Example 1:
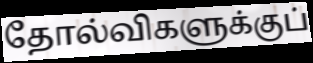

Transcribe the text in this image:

தோல்விகளுக்குப்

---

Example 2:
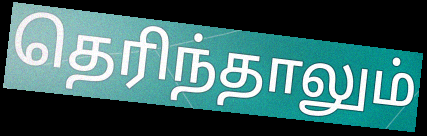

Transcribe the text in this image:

தெரிந்தாலும்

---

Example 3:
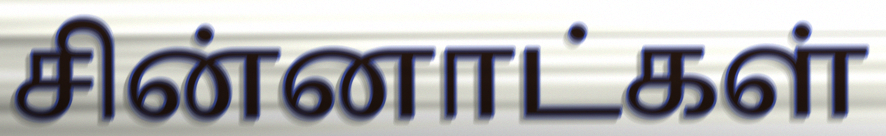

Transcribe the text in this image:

சின்னாட்கள்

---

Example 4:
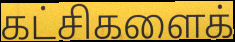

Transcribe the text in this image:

கட்சிகளைக்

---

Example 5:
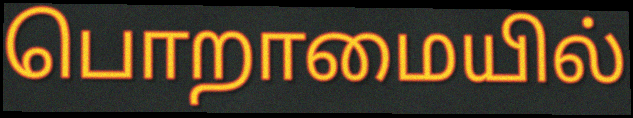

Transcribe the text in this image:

பொறாமையில்